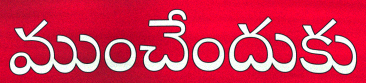
ముంచేందుకు